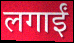
लगाईं